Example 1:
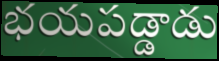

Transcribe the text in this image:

భయపడ్డాడు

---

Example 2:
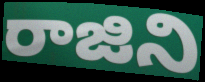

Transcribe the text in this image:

రాజిని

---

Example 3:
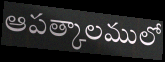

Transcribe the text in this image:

ఆపత్కాలములో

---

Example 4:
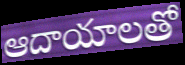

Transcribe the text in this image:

ఆదాయాలతో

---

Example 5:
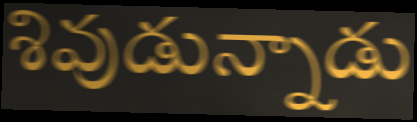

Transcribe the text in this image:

శివుడున్నాడు